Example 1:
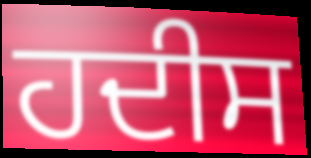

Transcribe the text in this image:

ਹਦੀਸ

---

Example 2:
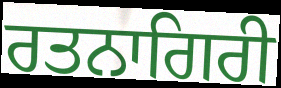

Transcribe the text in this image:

ਰਤਨਾਗਿਰੀ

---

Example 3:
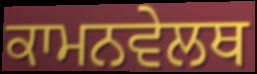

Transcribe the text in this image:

ਕਾਮਨਵੇਲਥ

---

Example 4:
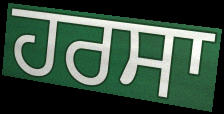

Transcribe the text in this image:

ਹਰਸਾ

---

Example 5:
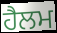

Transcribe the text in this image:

ਹੈਲਮ